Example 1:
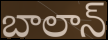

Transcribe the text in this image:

బాలాన్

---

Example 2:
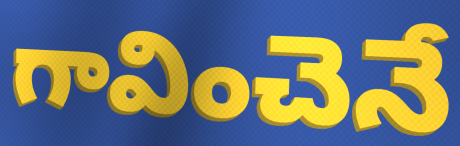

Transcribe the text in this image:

గావించెనే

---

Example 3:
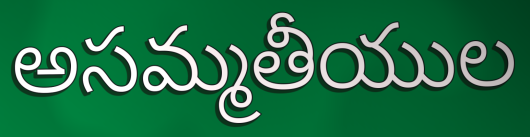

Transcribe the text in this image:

అసమ్మతీయుల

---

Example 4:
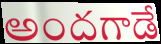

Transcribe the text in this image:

అందగాడే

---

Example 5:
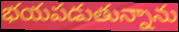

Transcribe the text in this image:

భయపడుతున్నాను